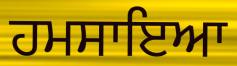
ਹਮਸਾਇਆ